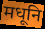
मधूनि